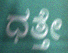
ಧತ್ತೇ